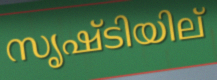
സൃഷ്ടിയില്